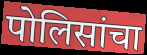
पोलिसांचा